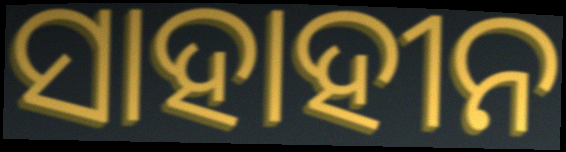
ସାହାହୀନ